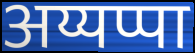
अय्यप्पा